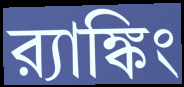
র‍্যাঙ্কিং